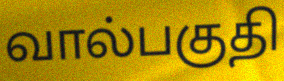
வால்பகுதி